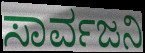
ಸಾರ್ವಜನಿ